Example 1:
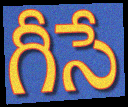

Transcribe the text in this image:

గీసే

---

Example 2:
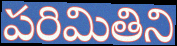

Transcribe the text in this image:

పరిమితిని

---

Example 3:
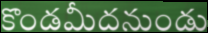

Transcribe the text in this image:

కొండమీదనుండు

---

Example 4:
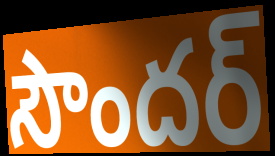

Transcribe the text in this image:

సౌందర్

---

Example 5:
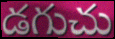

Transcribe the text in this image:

డగుచు